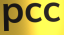
pcc